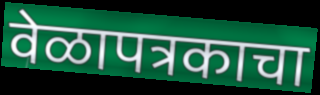
वेळापत्रकाचा